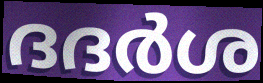
ദദർശ